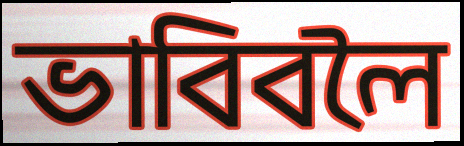
ভাবিবলৈ